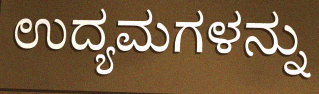
ಉದ್ಯಮಗಳನ್ನು